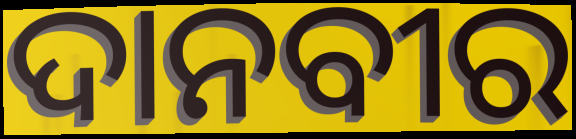
ଦାନବୀର